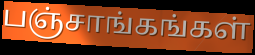
பஞ்சாங்கங்கள்